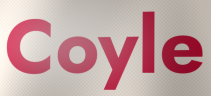
Coyle